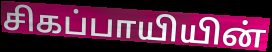
சிகப்பாயியின்